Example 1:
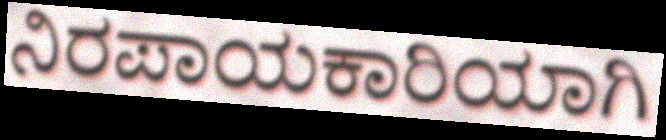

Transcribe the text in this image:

ನಿರಪಾಯಕಾರಿಯಾಗಿ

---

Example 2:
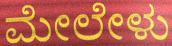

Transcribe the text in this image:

ಮೇಲೇಳು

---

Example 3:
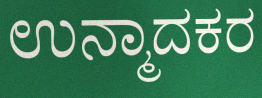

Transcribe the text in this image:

ಉನ್ಮಾದಕರ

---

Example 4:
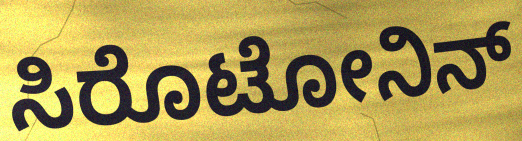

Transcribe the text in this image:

ಸಿರೊಟೋನಿನ್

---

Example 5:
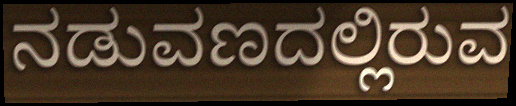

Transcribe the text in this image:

ನಡುವಣದಲ್ಲಿರುವ